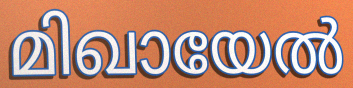
മിഖായേൽ